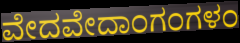
ವೇದವೇದಾಂಗಂಗಳಂ